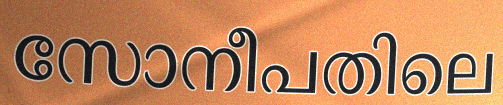
സോനീപതിലെ